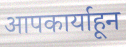
आपकार्याहून